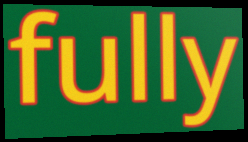
fully